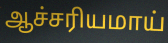
ஆச்சரியமாய்